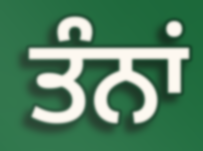
ਤੰਨਾਂ